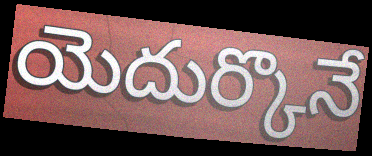
యెదుర్కొనే